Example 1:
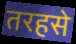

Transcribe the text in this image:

तरहसे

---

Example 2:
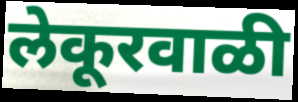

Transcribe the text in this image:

लेकूरवाळी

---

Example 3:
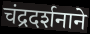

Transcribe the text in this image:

चंद्रदर्शनाने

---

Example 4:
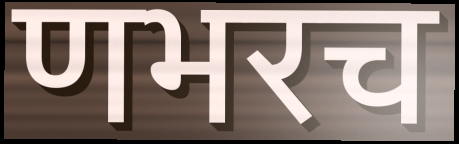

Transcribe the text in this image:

णभरच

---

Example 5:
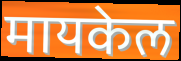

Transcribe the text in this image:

मायकेल